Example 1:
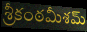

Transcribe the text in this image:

శ్రీకంఠమీశమ్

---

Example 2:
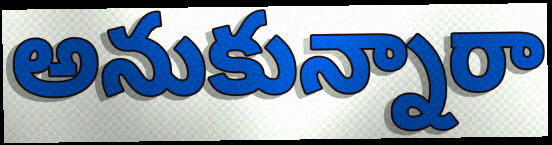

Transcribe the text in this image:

అనుకున్నారా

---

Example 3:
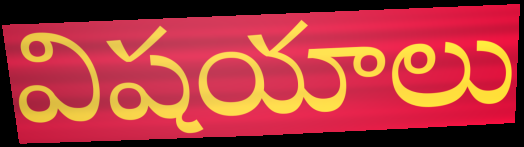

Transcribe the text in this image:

విషయాలు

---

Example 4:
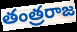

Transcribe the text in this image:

తంత్రరాజ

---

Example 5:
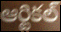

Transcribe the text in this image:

ఆర్టికల్